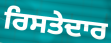
ਰਿਸਤੇਦਾਰ